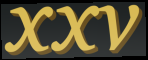
xxv